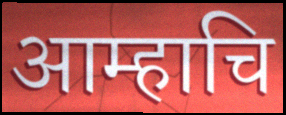
आम्हाचि